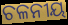
ଚଳନୀୟ